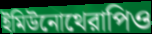
ইমিউনোথেরাপিও